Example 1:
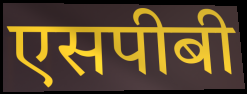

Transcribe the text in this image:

एसपीबी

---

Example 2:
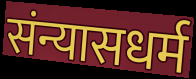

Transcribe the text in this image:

संन्यासधर्म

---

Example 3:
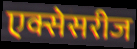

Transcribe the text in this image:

एक्सेसरीज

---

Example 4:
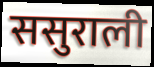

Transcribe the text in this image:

ससुराली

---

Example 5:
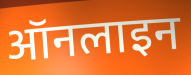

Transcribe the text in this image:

ऑनलाइन